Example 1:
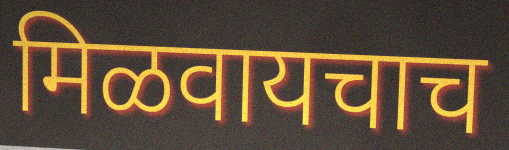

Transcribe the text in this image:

मिळवायचाच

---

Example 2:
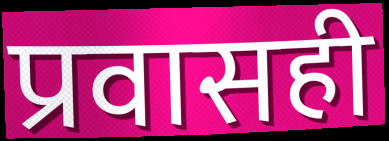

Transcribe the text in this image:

प्रवासही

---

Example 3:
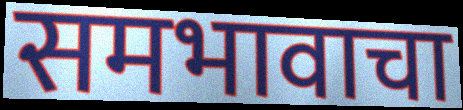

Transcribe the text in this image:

समभावाचा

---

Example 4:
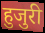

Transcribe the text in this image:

हुजुरी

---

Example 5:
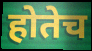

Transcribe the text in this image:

होतेच